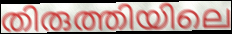
തിരുത്തിയിലെ